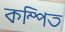
কম্পিত